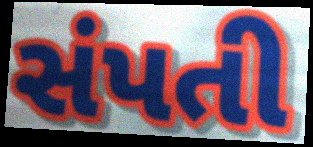
સંપતી